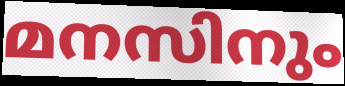
മനസിനും